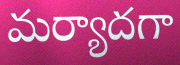
మర్యాదగా